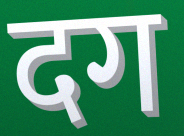
दग